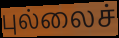
புல்லைச்